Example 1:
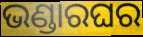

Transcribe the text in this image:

ଭଣ୍ଡାରଘର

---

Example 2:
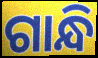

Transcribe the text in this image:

ଗାନ୍ଧି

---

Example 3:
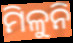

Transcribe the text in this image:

ମିଳୁନି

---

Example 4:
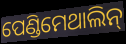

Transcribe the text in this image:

ପେଣ୍ଡିମେଥାଲିନ୍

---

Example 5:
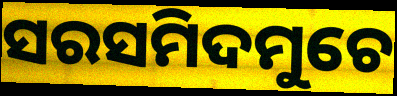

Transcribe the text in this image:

ସରସମିଦମୁଚେ